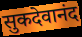
सुकदेवानंद